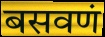
बसवणं